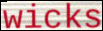
wicks